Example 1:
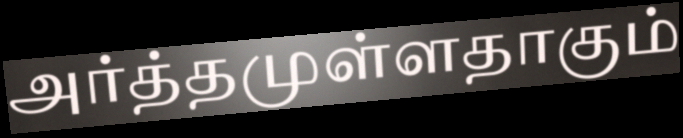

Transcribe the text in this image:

அர்த்தமுள்ளதாகும்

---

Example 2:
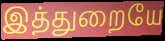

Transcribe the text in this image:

இத்துறையே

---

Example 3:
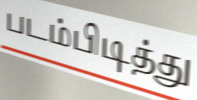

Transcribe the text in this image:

படம்பிடித்து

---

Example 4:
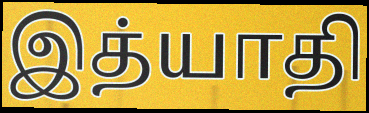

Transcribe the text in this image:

இத்யாதி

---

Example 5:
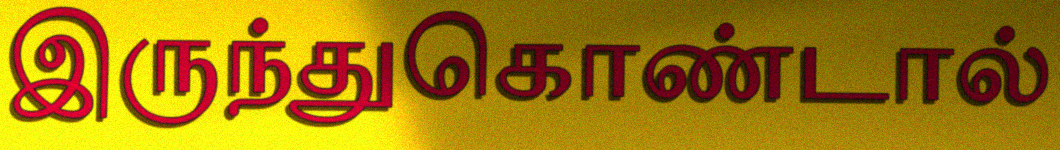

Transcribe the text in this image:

இருந்துகொண்டால்